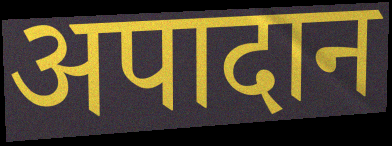
अपादान